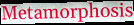
Metamorphosis